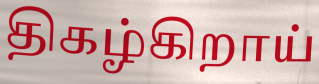
திகழ்கிறாய்